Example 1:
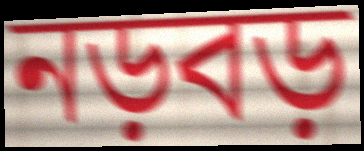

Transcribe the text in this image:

নড়বড়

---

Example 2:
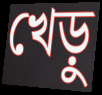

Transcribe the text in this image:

খেড়ু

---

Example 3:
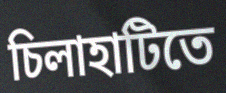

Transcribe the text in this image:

চিলাহাটিতে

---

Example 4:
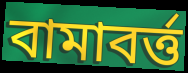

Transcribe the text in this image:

বামাবর্ত্ত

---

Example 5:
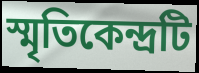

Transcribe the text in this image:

স্মৃতিকেন্দ্রটি